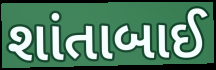
શાંતાબાઈ